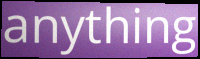
anything